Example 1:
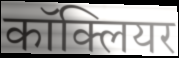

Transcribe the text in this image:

कॉक्लियर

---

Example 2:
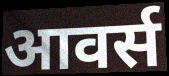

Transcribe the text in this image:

आवर्स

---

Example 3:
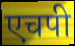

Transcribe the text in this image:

एचपी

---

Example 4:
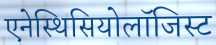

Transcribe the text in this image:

एनेस्थिसियोलॉजिस्ट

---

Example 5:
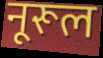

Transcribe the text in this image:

नूरूल